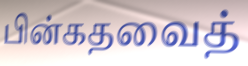
பின்கதவைத்